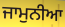
ਜਾਮੁਨੀਆ